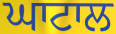
ਘਾਟਾਲ